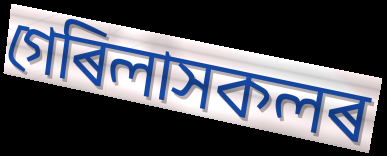
গেৰিলাসকলৰ